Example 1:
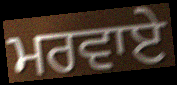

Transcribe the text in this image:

ਮਰਵਾਏ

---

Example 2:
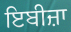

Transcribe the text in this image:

ਇਬੀਜ਼ਾ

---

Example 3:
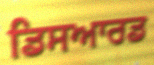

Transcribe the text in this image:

ਡਿਸਆਰਡ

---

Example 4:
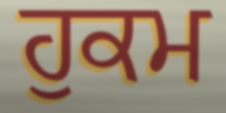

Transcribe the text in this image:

ਹੁਕਮ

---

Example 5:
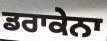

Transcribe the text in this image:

ਡਰਾਕੇਨਾ